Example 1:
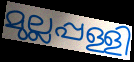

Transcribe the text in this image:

മുല്ലപ്പള്ളി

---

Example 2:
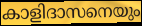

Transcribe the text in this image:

കാളിദാസനെയും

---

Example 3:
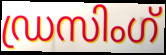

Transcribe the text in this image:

ഡ്രസിംഗ്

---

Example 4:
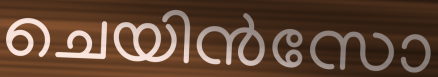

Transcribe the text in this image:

ചെയിൻസോ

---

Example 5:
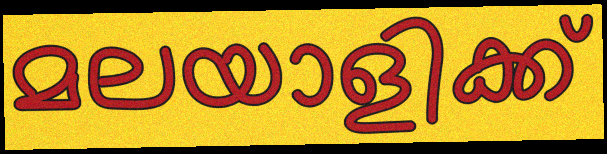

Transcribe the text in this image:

മലയാളിക്ക്